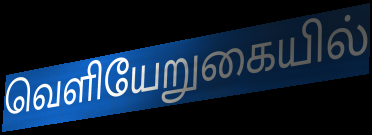
வெளியேறுகையில்